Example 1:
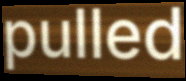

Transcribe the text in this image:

pulled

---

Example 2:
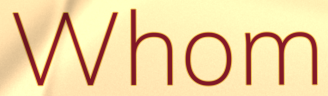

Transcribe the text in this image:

Whom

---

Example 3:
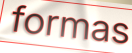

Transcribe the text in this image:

formas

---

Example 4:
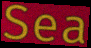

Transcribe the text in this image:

Sea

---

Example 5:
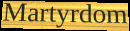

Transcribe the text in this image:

Martyrdom